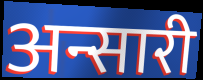
अन्सारी